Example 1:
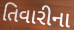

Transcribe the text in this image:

તિવારીના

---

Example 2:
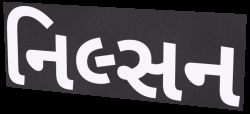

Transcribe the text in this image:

નિલ્સન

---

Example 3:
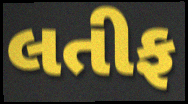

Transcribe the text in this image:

લતીફ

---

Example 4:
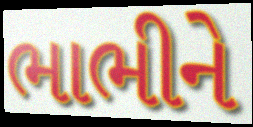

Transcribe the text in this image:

ભાભીને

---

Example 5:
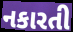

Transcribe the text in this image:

નકારતી